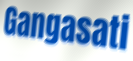
Gangasati